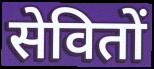
सेवितों